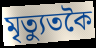
মৃত্যুতকৈ